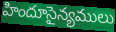
హిందూసైన్యములు